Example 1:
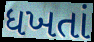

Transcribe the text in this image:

ધખતાં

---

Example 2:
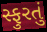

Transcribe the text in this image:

સ્ફુરતું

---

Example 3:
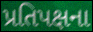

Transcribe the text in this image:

પ્રતિપક્ષના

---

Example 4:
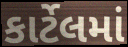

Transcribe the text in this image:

કાર્ટેલમાં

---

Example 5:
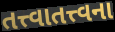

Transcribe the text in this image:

તત્ત્વાતત્ત્વના